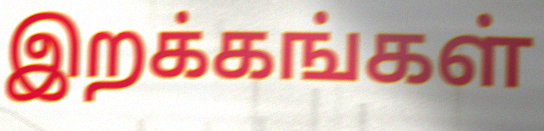
இறக்கங்கள்